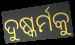
ଦୁଷ୍କର୍ମକୁ